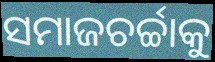
ସମାଜଚର୍ଚ୍ଚାକୁ